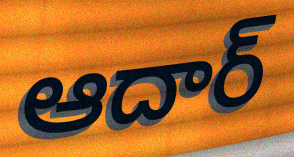
ఆదార్